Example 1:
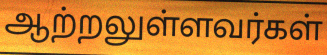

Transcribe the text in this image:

ஆற்றலுள்ளவர்கள்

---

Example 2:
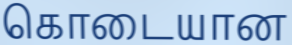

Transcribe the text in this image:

கொடையான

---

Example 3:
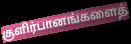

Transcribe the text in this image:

குளிர்பானங்களைத்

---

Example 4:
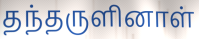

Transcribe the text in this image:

தந்தருளினாள்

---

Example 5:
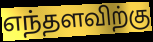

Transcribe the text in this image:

எந்தளவிற்கு